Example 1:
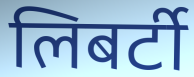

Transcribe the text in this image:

लिबर्टी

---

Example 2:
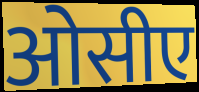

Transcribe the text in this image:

ओसीए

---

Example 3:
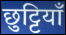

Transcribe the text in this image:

छुट्टियाँ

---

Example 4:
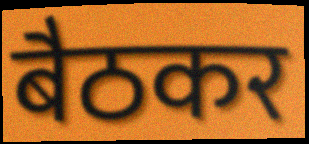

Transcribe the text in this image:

बैठकर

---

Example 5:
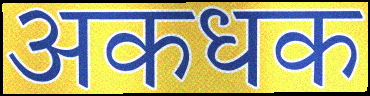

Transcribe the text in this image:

अकधक